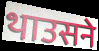
थाउसने